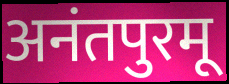
अनंतपुरमू